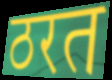
ठरत